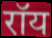
रॉय